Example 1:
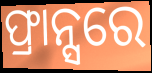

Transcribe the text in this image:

ଫ୍ରାନ୍ସରେ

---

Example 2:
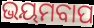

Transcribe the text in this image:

ଭୟମବାପ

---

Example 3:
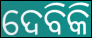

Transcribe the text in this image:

ଦେବିକି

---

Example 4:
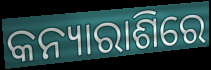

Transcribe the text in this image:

କନ୍ୟାରାଶିରେ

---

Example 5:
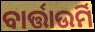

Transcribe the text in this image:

ବାର୍ତ୍ତାଉର୍ମି